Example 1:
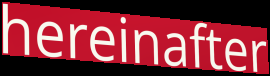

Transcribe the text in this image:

hereinafter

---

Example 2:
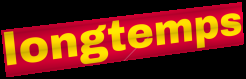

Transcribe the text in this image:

longtemps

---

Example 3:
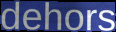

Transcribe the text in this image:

dehors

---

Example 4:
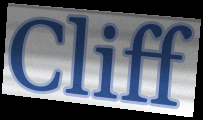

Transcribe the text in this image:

Cliff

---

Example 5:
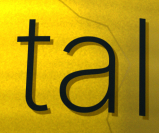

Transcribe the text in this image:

tal